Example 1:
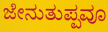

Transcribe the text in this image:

ಜೇನುತುಪ್ಪವೂ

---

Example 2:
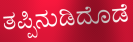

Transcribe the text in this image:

ತಪ್ಪಿನುಡಿದೊಡೆ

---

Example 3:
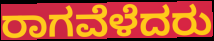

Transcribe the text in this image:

ರಾಗವೆಳೆದರು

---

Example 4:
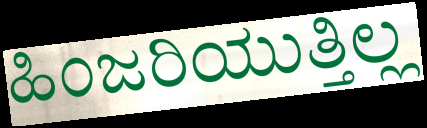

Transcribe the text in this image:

ಹಿಂಜರಿಯುತ್ತಿಲ್ಲ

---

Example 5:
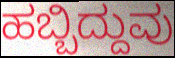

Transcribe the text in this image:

ಹಬ್ಬಿದ್ದುವು